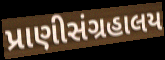
પ્રાણીસંગ્રહાલય